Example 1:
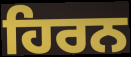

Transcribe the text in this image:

ਹਿਰਨ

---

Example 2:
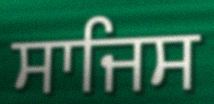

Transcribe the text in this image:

ਸਾਜਿਸ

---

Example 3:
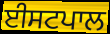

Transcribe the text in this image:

ਈਸਟਪਾਲ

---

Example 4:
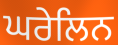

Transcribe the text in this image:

ਘਰੇਲਿਨ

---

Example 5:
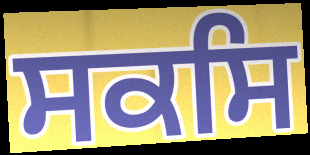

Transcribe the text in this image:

ਸਕਸਿ